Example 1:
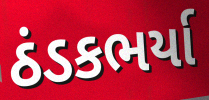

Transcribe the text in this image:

ઠંડકભર્યા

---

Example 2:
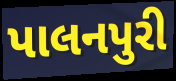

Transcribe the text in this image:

પાલનપુરી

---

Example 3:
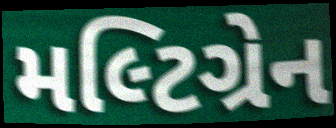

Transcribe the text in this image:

મલ્ટિગ્રેન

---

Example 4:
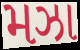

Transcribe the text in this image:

મઝા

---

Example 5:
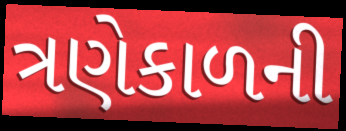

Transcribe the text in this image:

ત્રણેકાળની